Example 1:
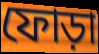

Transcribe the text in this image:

ফোড়া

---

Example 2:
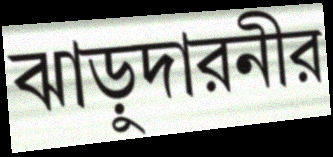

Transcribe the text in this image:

ঝাড়ুদারনীর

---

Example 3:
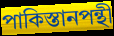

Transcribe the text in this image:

পাকিস্তানপন্থী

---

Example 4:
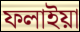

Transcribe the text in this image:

ফলাইয়া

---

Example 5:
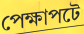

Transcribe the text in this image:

পেক্ষাপটে